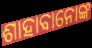
ଶାହାବାନୋଙ୍କ